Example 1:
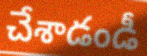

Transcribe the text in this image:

చేశాడండీ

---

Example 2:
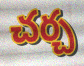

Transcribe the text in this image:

చర్చ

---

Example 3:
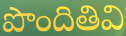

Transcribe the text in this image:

పొందితివి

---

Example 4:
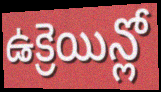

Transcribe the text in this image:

ఉక్రెయిన్లో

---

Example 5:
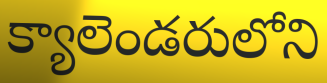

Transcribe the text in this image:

క్యాలెండరులోని